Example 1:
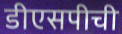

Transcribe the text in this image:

डीएसपीची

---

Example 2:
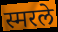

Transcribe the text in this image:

स्मरले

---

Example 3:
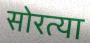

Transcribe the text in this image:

सोरत्या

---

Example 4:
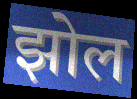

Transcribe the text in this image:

झोल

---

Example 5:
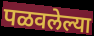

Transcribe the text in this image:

पळवलेल्या